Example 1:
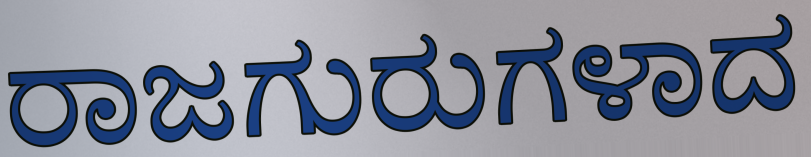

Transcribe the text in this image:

ರಾಜಗುರುಗಳಾದ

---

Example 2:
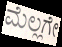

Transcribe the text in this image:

ಮೆಲ್ಲಗೇ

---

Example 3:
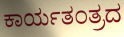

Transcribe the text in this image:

ಕಾರ್ಯತಂತ್ರದ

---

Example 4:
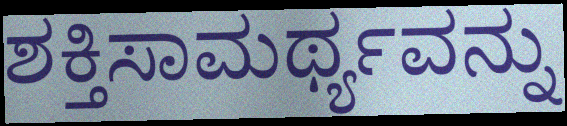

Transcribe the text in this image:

ಶಕ್ತಿಸಾಮರ್ಥ್ಯವನ್ನು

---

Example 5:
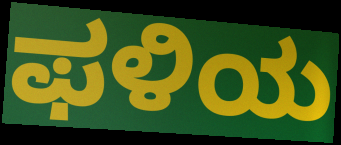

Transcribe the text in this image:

ಫಳಿಯ